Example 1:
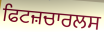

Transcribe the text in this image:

ਫਿਟਜ਼ਚਾਰਲਸ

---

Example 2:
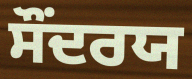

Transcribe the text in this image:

ਸੌਂਦਰਯ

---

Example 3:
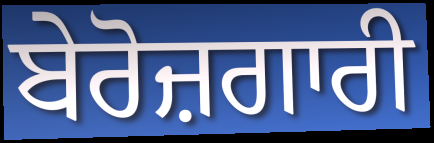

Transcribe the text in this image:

ਬੇਰੋਜ਼ਗਾਰੀ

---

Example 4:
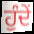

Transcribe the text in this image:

ਹੁੰਦੇਂ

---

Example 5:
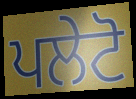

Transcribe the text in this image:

ਪਲੇਟੋ